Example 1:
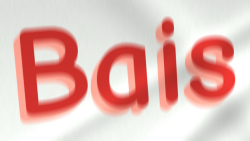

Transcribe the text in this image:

Bais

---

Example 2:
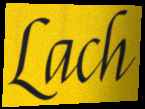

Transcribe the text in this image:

Lach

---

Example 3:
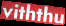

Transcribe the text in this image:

viththu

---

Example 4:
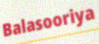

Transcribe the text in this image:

Balasooriya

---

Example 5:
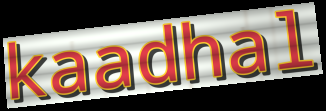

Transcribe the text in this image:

kaadhal